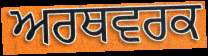
ਅਰਥਵਰਕ